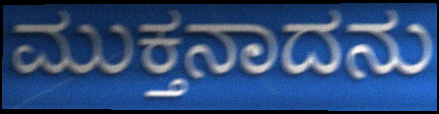
ಮುಕ್ತನಾದನು